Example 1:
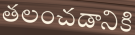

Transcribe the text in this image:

తలంచడానికి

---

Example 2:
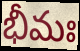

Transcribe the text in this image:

భీమః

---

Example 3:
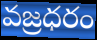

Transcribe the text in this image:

వజ్రధరం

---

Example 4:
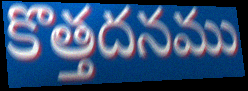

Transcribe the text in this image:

కొత్తదనము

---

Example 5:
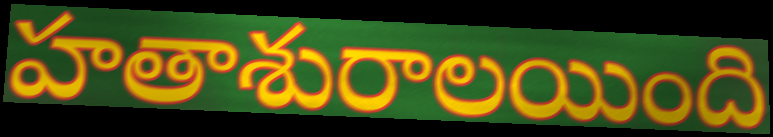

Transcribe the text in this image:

హతాశురాలయింది